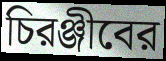
চিরঞ্জীবের